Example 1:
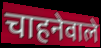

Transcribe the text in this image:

चाहनेवाले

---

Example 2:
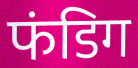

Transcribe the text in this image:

फंडिग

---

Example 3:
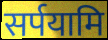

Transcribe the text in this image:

सर्पयामि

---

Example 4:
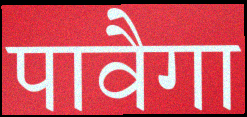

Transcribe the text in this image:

पावैगा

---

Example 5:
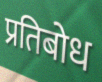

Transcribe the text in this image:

प्रतिबोध